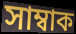
সাম্বাক